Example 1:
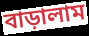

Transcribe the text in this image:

বাড়ালাম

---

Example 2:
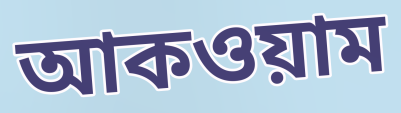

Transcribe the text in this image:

আকওয়াম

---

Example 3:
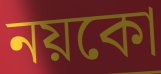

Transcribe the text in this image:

নয়কো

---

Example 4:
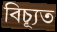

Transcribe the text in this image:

বিচ্যূত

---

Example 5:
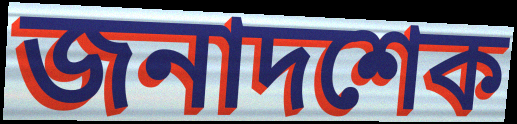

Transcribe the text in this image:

জনাদশেক